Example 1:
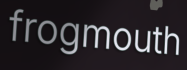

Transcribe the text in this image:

frogmouth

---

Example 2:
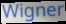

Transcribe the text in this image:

Wigner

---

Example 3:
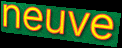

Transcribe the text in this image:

neuve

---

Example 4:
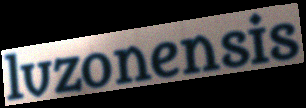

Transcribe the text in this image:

luzonensis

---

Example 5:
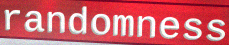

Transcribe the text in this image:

randomness